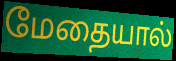
மேதையால்